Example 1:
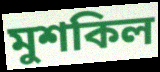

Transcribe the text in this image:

মুশকিল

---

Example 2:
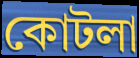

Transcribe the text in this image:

কোটলা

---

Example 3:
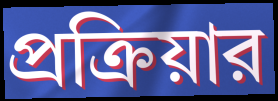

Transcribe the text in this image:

প্রক্রিয়ার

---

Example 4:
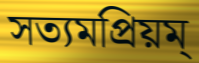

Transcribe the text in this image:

সত্যমপ্রিয়ম্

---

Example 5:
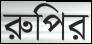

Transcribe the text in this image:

রুপির